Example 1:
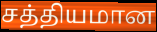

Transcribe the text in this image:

சத்தியமான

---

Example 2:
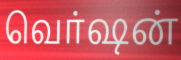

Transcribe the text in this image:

வெர்ஷன்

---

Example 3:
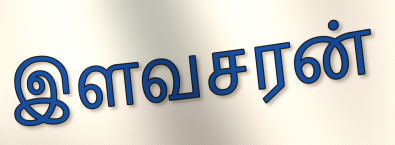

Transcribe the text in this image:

இளவசரன்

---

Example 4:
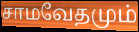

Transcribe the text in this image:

சாமவேதமும்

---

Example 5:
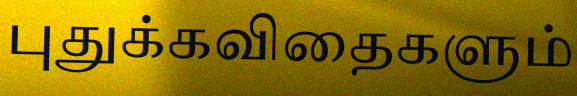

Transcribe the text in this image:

புதுக்கவிதைகளும்